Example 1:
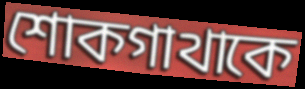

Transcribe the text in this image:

শোকগাথাকে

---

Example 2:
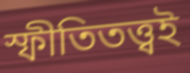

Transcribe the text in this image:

স্ফীতিতত্ত্বই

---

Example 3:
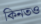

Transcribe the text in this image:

কিনতও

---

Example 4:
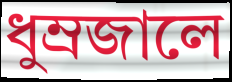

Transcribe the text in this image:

ধুম্রজালে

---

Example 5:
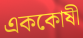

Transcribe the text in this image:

এককোষী